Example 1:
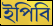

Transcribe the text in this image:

ইপিবি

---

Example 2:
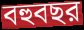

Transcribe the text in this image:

বহুবছর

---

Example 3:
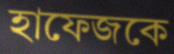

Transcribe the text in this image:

হাফেজকে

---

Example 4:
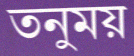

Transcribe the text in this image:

তনুময়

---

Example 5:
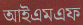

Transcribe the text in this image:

আইএমএফ